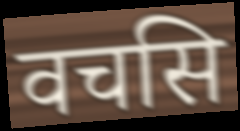
वचसि